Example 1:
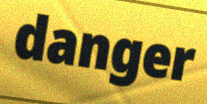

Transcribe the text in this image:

danger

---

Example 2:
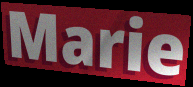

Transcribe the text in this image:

Marie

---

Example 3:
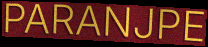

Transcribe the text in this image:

PARANJPE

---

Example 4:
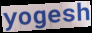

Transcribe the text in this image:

yogesh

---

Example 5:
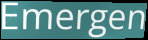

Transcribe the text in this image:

Emergen